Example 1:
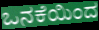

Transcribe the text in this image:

ಒನಕೆಯಿಂದ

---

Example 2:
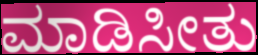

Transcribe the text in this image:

ಮಾಡಿಸೀತು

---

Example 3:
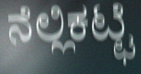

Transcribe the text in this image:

ನೆಲ್ಲಿಕಟ್ಟೆ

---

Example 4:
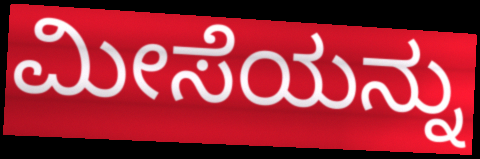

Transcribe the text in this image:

ಮೀಸೆಯನ್ನು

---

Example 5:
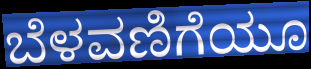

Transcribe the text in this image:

ಬೆಳವಣಿಗೆಯೂ